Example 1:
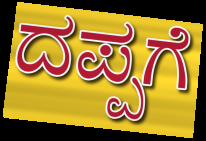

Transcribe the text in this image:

ದಪ್ಪಗೆ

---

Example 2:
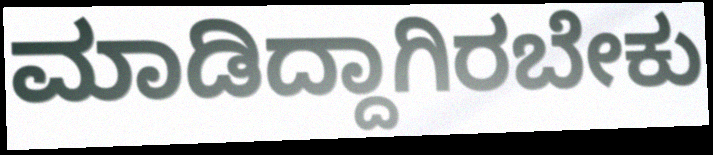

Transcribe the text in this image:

ಮಾಡಿದ್ದಾಗಿರಬೇಕು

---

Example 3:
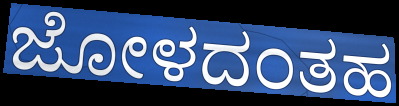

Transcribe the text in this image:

ಜೋಳದಂತಹ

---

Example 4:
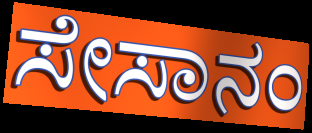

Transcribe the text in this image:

ಸೇಸಾನಂ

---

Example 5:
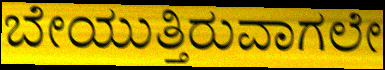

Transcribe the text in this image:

ಬೇಯುತ್ತಿರುವಾಗಲೇ